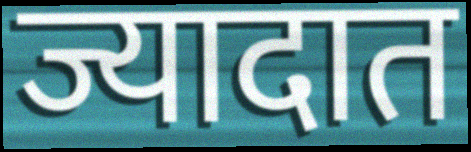
ज्यादात